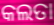
କଲତା